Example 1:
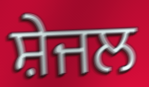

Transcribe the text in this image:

ਸ਼ੇਜਲ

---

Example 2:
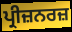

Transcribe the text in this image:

ਪ੍ਰੀਜ਼ਨਰਜ਼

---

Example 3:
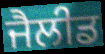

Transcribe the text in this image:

ਜੈਲੀਡ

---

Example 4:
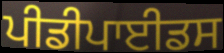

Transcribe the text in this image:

ਪੀਡੀਪਾਈਡਸ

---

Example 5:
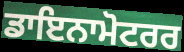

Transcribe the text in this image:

ਡਾਇਨਾਮੋਟਰਰ